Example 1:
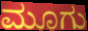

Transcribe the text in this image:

ಮೂಗು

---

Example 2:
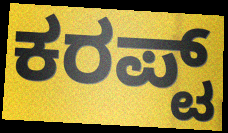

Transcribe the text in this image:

ಕರಪ್ಟ್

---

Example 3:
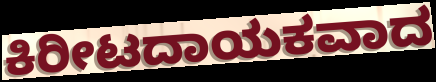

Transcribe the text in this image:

ಕಿರೀಟದಾಯಕವಾದ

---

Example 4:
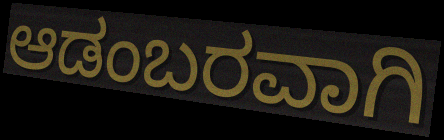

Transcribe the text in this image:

ಆಡಂಬರವಾಗಿ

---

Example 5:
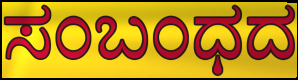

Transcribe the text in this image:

ಸಂಬಂಧದ